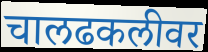
चालढकलीवर